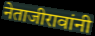
नेताजीरावांनी